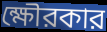
ক্ষৌরকার